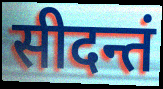
सीदन्तं